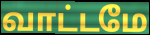
வாட்டமே